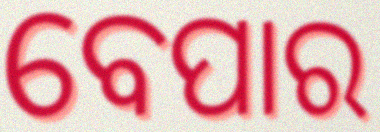
ବେପାର